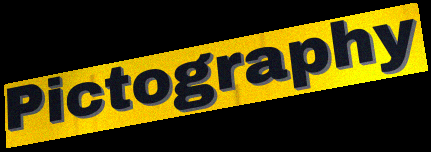
Pictography